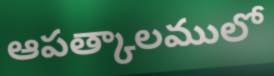
ఆపత్కాలములో